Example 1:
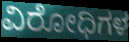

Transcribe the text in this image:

ವಿರೋಧಿಗಳ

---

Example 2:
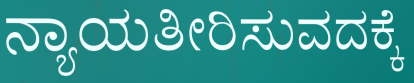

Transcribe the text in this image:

ನ್ಯಾಯತೀರಿಸುವದಕ್ಕೆ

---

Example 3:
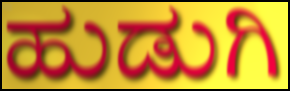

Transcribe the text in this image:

ಹುಡುಗಿ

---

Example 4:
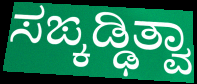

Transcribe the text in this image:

ಸಙ್ಕಡ್ಢಿತ್ವಾ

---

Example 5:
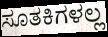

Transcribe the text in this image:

ಸೂತಕಿಗಳಲ್ಲ